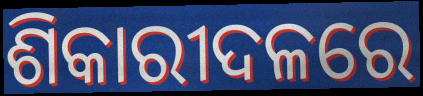
ଶିକାରୀଦଳରେ